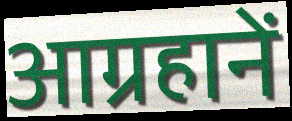
आग्रहानें